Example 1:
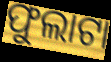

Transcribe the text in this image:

ଫୁଲାଟା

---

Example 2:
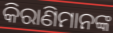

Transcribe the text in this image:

କିରାଣିମାନଙ୍କ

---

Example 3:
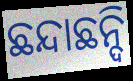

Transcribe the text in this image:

ଛନ୍ଦାଛନ୍ଦି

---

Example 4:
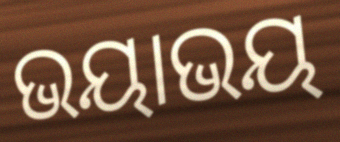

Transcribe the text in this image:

ଭୟାଭୟ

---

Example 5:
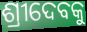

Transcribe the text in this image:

ଶ୍ରୀଦେବକୁ